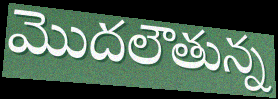
మొదలౌతున్న